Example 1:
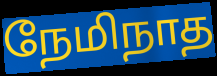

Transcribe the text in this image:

நேமிநாத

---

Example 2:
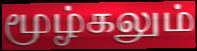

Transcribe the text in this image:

மூழ்கலும்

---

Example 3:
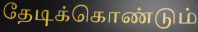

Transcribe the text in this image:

தேடிக்கொண்டும்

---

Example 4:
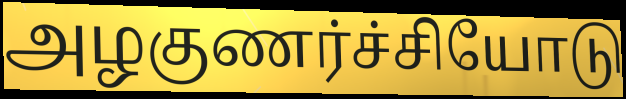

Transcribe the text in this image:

அழகுணர்ச்சியோடு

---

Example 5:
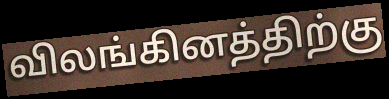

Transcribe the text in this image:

விலங்கினத்திற்கு